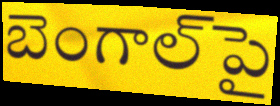
బెంగాల్‌పై